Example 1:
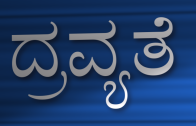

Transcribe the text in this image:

ದ್ರವ್ಯತೆ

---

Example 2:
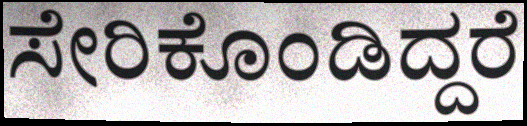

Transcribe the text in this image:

ಸೇರಿಕೊಂಡಿದ್ದರೆ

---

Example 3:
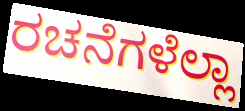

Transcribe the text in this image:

ರಚನೆಗಳೆಲ್ಲಾ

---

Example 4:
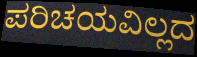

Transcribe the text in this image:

ಪರಿಚಯವಿಲ್ಲದ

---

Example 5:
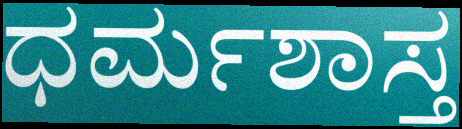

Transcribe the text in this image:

ಧರ್ಮಶಾಸ್ತ